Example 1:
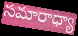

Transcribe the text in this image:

సమారాధ్యా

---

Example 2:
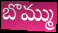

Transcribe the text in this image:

బొమ్ము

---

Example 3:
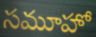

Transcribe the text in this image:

సమూహో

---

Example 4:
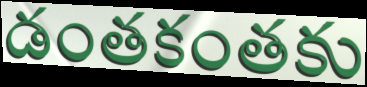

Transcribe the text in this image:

డంతకంతకు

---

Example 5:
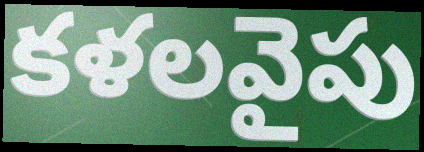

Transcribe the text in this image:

కళలవైపు